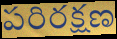
పరిరక్షణ